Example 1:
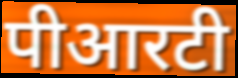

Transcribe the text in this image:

पीआरटी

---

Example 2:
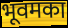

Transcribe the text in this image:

भूवमका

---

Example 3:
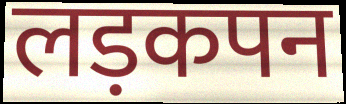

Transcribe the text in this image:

लड़कपन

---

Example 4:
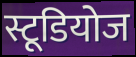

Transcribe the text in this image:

स्टूडियोज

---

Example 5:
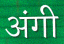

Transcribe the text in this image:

अंगी